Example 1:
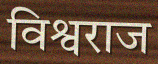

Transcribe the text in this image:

विश्वराज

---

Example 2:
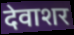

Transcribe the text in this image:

देवाशर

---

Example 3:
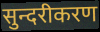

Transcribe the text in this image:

सुन्दरीकरण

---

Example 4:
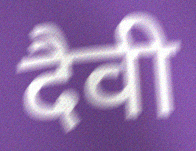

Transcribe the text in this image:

दैवी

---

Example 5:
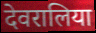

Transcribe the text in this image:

देवरालिया